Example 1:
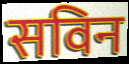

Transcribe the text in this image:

सविन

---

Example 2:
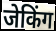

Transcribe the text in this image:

जेकिंग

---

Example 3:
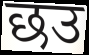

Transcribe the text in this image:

छउ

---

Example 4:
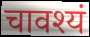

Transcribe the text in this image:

चावश्यं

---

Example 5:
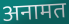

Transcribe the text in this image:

अनामत